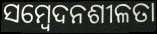
ସମ୍ଵେଦନଶୀଳତା